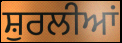
ਸ਼ੁਰਲੀਆਂ